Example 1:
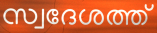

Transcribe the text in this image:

സ്വദേശത്ത്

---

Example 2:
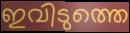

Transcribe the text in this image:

ഇവിടുത്തെ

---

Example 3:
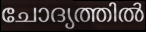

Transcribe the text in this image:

ചോദ്യത്തിൽ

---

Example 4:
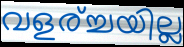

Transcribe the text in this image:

വളര്ച്ചയില്ല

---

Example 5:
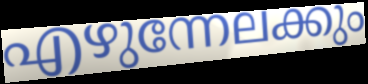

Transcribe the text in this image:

എഴുന്നേലക്കും